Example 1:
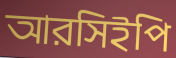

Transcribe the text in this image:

আরসিইপি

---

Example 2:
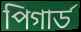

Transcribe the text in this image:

পিগার্ড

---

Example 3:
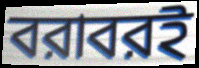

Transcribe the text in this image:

বরাবরই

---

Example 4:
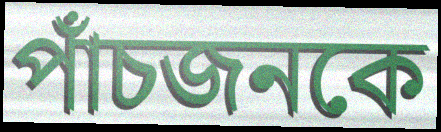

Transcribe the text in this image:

পাঁচজনকে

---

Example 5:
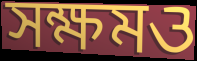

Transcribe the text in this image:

সক্ষমও